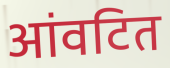
आंवटित